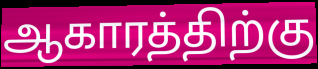
ஆகாரத்திற்கு